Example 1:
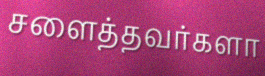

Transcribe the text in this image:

சளைத்தவர்களா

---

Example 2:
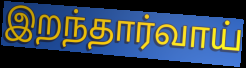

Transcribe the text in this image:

இறந்தார்வாய்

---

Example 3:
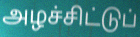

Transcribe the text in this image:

அழச்சிட்டுப்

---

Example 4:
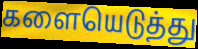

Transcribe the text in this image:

களையெடுத்து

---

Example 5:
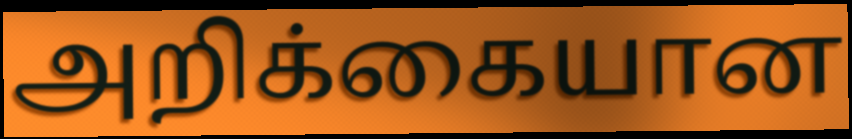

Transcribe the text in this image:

அறிக்கையான